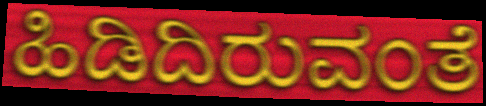
ಹಿಡಿದಿರುವಂತೆ